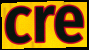
cre